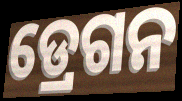
ଡ୍ରେଗନ